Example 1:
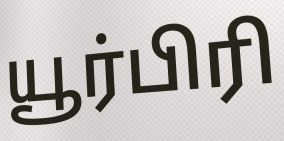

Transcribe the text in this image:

யூர்பிரி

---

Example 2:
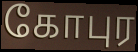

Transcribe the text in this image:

கோபுர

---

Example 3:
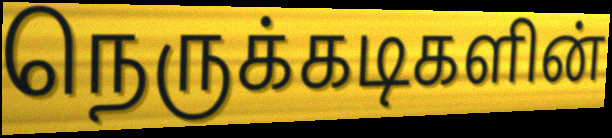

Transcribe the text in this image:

நெருக்கடிகளின்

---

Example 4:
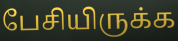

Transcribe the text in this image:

பேசியிருக்க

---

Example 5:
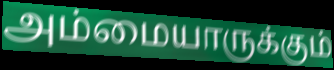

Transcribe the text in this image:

அம்மையாருக்கும்